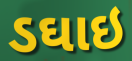
ડઘાઇ